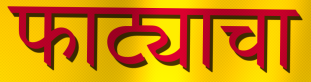
फाट्याचा